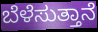
ಬೆಳೆಸುತ್ತಾನೆ